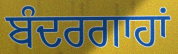
ਬੰਦਰਗਾਹਾਂ